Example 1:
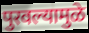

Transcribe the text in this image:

पुरवल्यामुळे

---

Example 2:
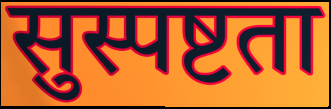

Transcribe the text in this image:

सुस्पष्टता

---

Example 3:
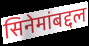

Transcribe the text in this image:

सिनेमांबद्दल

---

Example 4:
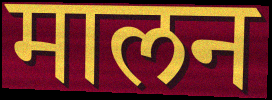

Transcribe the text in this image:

मालन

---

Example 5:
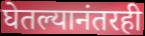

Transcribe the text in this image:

घेतल्यानंतरही